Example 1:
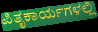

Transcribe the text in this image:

ಪಿತೃಕಾರ್ಯಗಳಲ್ಲಿ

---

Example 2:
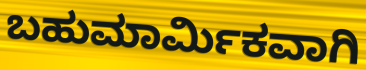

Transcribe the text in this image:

ಬಹುಮಾರ್ಮಿಕವಾಗಿ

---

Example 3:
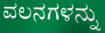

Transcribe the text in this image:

ವಲನಗಳನ್ನು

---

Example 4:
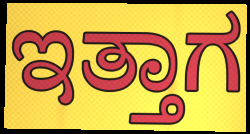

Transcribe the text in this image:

ಇತ್ತಾಗ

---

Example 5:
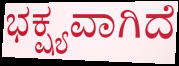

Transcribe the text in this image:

ಭಕ್ಷ್ಯವಾಗಿದೆ